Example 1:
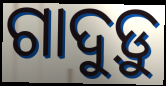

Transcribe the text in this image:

ଗାଦୁଡ଼ୁ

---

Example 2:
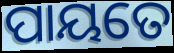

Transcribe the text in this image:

ପାୟତେ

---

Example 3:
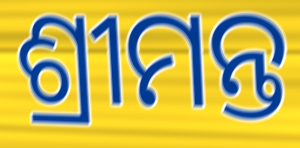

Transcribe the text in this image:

ଶ୍ରୀମନ୍ତ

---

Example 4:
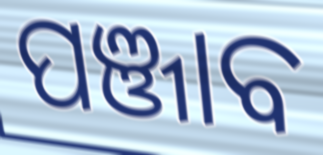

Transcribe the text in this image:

ପଞ୍ଜାବ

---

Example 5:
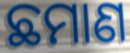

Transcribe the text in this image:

ଛମାଣ